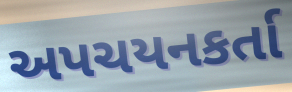
અપચયનકર્તા